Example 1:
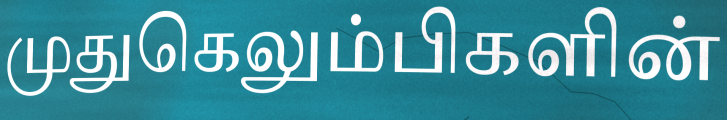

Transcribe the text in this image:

முதுகெலும்பிகளின்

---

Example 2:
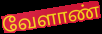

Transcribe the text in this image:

வேளாண்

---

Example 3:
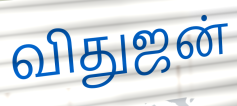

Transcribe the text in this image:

விதுஜன்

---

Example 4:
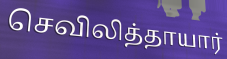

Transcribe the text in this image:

செவிலித்தாயார்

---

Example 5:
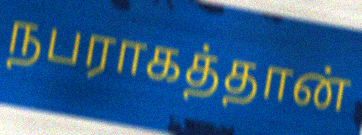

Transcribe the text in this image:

நபராகத்தான்